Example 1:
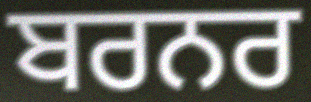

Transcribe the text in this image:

ਬਰਨਰ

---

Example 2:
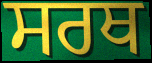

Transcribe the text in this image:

ਸਰਥ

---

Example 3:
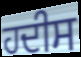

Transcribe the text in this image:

ਹਦੀਸ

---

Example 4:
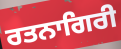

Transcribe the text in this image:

ਰਤਨਾਗਿਰੀ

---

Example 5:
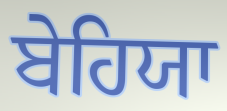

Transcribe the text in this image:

ਬੇਹਿਯਾ